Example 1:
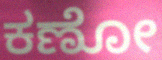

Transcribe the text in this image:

ಕಣೋ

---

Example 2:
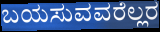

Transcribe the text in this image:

ಬಯಸುವವರೆಲ್ಲರ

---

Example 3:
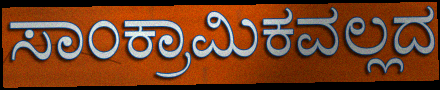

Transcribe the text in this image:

ಸಾಂಕ್ರಾಮಿಕವಲ್ಲದ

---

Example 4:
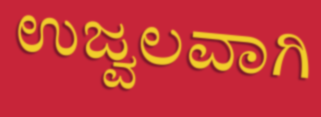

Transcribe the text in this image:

ಉಜ್ವಲವಾಗಿ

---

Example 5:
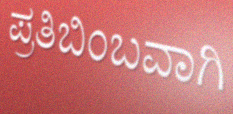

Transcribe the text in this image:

ಪ್ರತಿಬಿಂಬವಾಗಿ